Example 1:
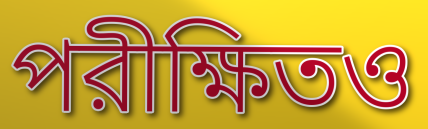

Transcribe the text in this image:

পরীক্ষিতও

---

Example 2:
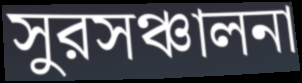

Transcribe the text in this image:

সুরসঞ্চালনা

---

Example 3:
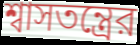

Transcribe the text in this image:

শ্বাসতন্ত্রের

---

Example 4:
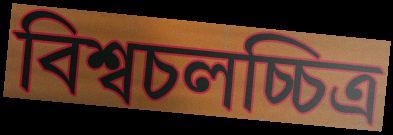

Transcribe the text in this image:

বিশ্বচলচ্চিত্র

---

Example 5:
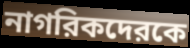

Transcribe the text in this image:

নাগরিকদেরকে